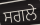
ਸਗਲੇ